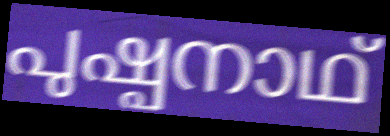
പുഷ്പനാഥ്